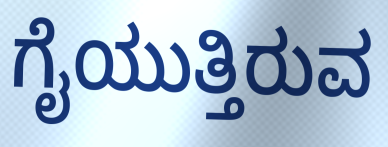
ಗೈಯುತ್ತಿರುವ